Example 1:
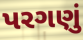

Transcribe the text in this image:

પરગણું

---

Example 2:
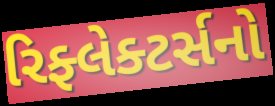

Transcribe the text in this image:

રિફ્લેક્ટર્સનો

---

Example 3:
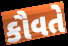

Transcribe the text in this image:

કૌવતે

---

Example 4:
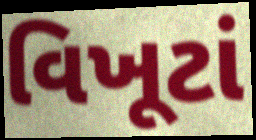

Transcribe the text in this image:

વિખૂટાં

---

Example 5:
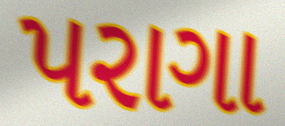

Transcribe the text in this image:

પરાગા